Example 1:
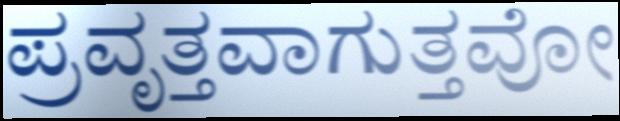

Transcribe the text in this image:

ಪ್ರವೃತ್ತವಾಗುತ್ತವೋ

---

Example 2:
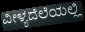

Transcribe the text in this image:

ವೀಳ್ಯದೆಲೆಯಲ್ಲಿ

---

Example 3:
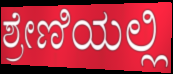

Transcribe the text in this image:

ಶ್ರೇಣಿಯಲ್ಲಿ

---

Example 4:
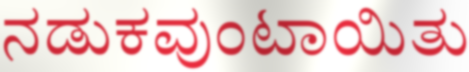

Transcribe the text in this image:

ನಡುಕವುಂಟಾಯಿತು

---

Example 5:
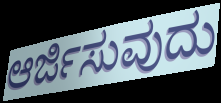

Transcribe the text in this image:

ಆರ್ಜಿಸುವುದು